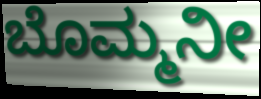
ಬೊಮ್ಮನೀ